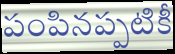
పంపినప్పటికీ